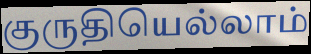
குருதியெல்லாம்